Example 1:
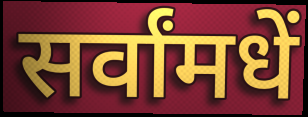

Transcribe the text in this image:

सर्वांमधें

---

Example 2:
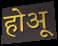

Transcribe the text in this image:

होअू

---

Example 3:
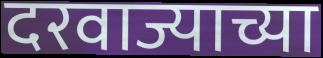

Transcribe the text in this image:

दरवाज्याच्या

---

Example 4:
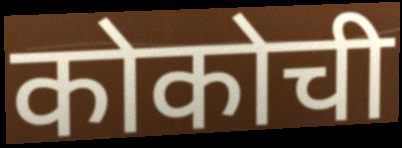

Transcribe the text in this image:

कोकोची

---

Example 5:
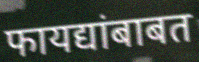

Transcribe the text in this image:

फायद्यांबाबत